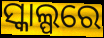
ସ୍କାଲ୍ପରେ